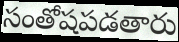
సంతోషపడతారు